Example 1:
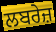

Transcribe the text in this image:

ਲਬਰੇਜ਼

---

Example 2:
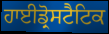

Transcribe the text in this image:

ਹਾਈਡ੍ਰੋਸਟੈਟਿਕ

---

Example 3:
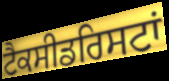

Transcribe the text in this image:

ਟੈਕਸੀਡਰਿਸਟਾਂ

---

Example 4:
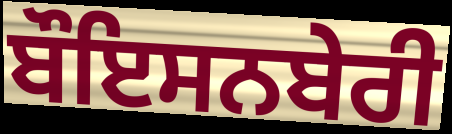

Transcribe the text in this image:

ਬੌਇਸਨਬੇਰੀ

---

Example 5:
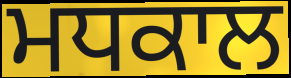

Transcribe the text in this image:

ਮਧਕਾਲ